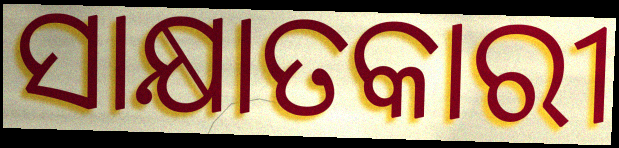
ସାକ୍ଷାତକାରୀ